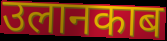
उलानकाब